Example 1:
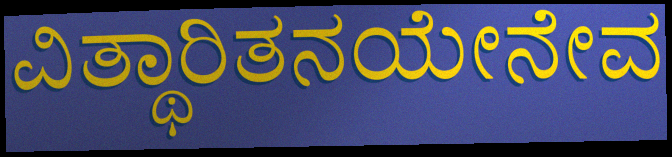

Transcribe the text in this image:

ವಿತ್ಥಾರಿತನಯೇನೇವ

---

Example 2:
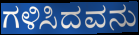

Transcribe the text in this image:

ಗಳಿಸಿದವನು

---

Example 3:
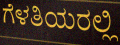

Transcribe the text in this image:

ಗೆಳತಿಯರಲ್ಲಿ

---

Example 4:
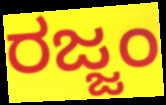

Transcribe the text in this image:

ರಜ್ಜಂ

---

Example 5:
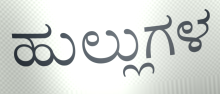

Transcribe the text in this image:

ಹುಲ್ಲುಗಳ